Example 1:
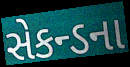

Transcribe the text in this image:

સેકન્ડના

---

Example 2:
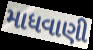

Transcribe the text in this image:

માધવાણી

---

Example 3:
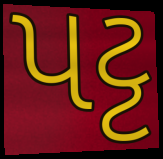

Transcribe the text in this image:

પટ્ટ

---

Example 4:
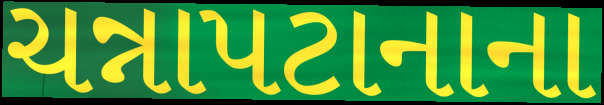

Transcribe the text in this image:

ચન્નાપટાનાના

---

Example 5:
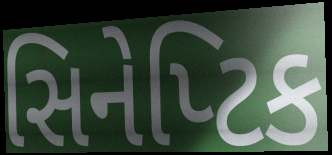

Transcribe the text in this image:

સિનેપ્ટિક